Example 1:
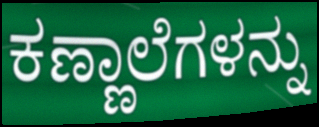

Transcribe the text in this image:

ಕಣ್ಣಾಲೆಗಳನ್ನು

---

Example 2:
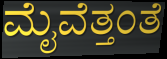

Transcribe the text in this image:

ಮೈವೆತ್ತಂತೆ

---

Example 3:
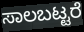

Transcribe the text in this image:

ಸಾಲಬಟ್ಟರೆ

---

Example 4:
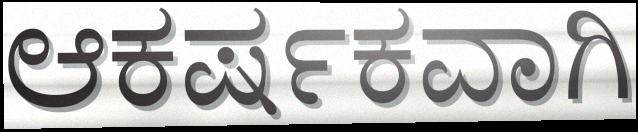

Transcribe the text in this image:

ಆಕರ್ಷಕವಾಗಿ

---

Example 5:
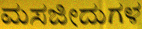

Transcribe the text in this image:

ಮಸಜೀದುಗಳ